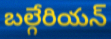
బల్గేరియన్